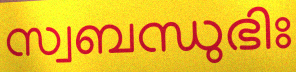
സ്വബന്ധുഭിഃ